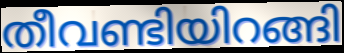
തീവണ്ടിയിറങ്ങി